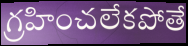
గ్రహించలేకపోతే